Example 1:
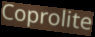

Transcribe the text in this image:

Coprolite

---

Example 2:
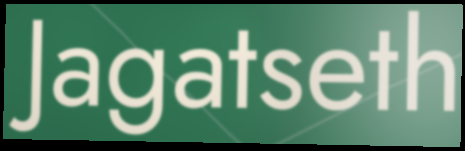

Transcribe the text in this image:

Jagatseth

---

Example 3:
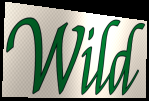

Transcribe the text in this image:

Wild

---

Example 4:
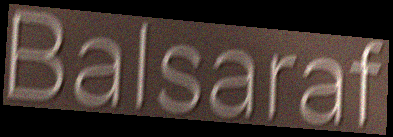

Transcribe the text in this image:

Balsaraf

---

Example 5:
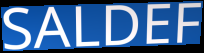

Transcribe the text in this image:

SALDEF